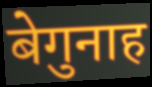
बेगुनाह